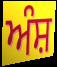
ਅੰਸ਼